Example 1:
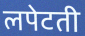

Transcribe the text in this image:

लपेटती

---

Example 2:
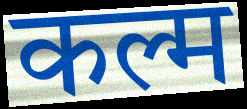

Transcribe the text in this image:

कल्म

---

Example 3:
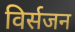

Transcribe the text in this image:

विर्सजन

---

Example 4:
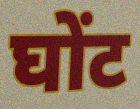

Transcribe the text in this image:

घोंट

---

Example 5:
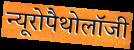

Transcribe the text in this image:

न्यूरोपैथोलॉजी